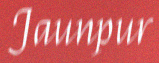
Jaunpur